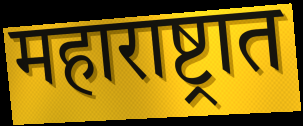
महाराष्ट्रात